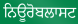
ਨਿਊਰੋਬਲਾਸਟ